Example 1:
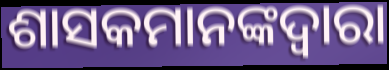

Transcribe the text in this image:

ଶାସକମାନଙ୍କଦ୍ୱାରା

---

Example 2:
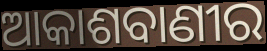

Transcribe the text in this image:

ଆକାଶବାଣୀର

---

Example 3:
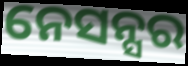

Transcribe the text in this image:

ନେସନ୍ସର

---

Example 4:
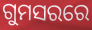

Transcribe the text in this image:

ଗୁମସରରେ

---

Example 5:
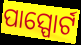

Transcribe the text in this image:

ପାସ୍ପୋର୍ଟ